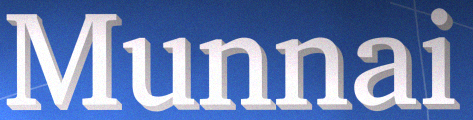
Munnai